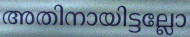
അതിനായിട്ടല്ലോ